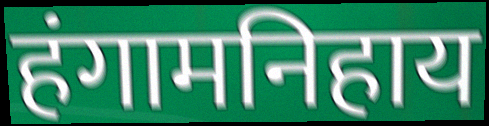
हंगामनिहाय